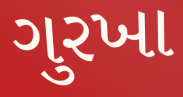
ગુરખા